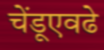
चेंडूएवढे